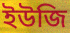
ইউজি